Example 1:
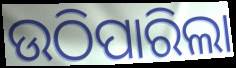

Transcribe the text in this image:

ଉଠିପାରିଲା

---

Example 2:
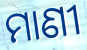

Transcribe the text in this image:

ମାଣୀ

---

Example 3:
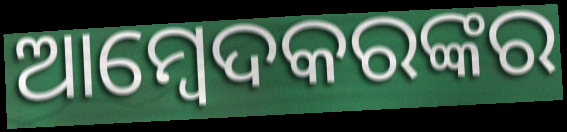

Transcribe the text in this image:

ଆମ୍ବେଦକରଙ୍କର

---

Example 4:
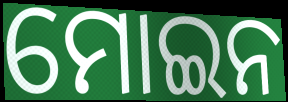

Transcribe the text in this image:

ମୋଇନ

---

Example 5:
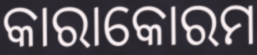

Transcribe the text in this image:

କାରାକୋରମ